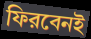
ফিরবেনই